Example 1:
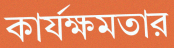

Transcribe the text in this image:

কার্যক্ষমতার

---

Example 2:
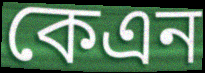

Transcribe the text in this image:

কেএন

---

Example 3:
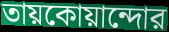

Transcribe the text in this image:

তায়কোয়ান্দোর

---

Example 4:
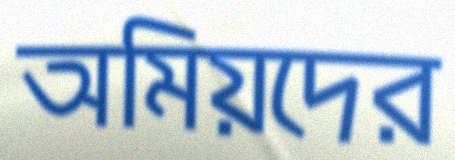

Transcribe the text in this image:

অমিয়দের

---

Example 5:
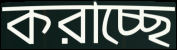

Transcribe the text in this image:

করাচ্ছে